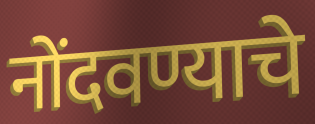
नोंदवण्याचे